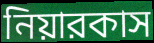
নিয়ারকাস